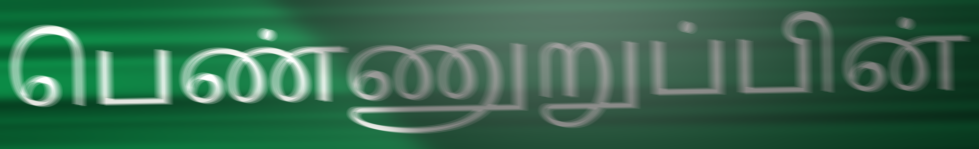
பெண்ணுறுப்பின்